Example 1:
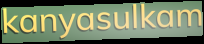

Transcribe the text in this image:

kanyasulkam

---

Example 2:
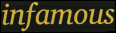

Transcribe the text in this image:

infamous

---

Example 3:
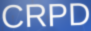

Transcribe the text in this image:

CRPD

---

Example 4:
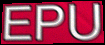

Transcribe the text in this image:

EPU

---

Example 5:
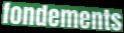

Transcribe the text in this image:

fondements